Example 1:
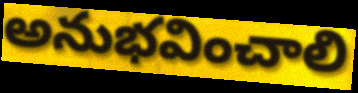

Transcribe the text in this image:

అనుభవించాలి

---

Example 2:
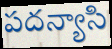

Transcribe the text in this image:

పదన్యాసి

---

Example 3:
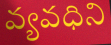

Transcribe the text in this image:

వ్యవధిని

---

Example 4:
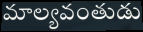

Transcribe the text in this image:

మాల్యవంతుడు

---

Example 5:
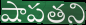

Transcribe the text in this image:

షాపతని